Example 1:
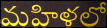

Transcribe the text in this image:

మహిళలో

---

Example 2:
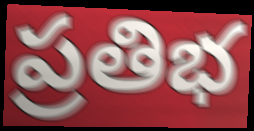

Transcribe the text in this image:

ప్రతిభ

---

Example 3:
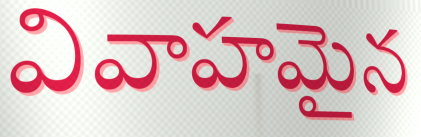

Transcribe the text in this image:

వివాహమైన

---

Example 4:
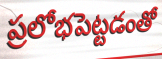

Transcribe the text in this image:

ప్రలోభపెట్టడంతో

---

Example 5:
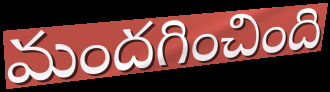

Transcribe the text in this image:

మందగించింది